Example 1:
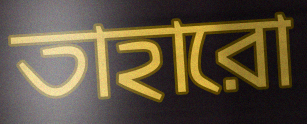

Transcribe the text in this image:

তাহারো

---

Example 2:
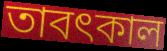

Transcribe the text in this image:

তাবৎকাল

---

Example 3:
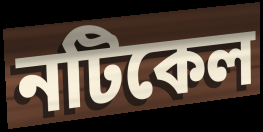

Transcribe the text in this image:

নটিকেল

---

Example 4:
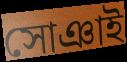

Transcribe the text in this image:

সোঞাই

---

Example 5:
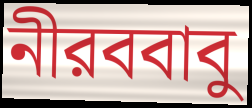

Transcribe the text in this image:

নীরববাবু